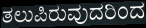
ತಲುಪಿರುವುದರಿಂದ